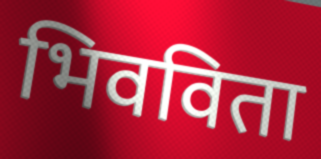
भिवविता